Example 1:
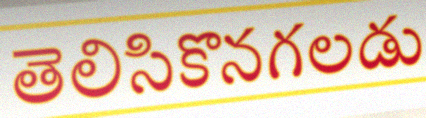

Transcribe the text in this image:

తెలిసికొనగలడు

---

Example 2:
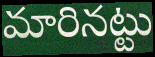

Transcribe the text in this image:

మారినట్టు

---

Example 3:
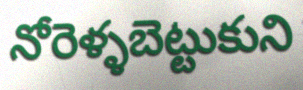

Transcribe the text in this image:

నోరెళ్ళబెట్టుకుని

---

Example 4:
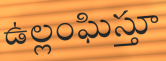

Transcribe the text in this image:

ఉల్లంఘిస్తూ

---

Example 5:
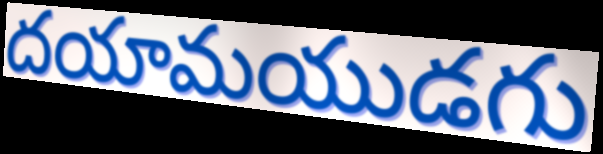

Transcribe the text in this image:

దయామయుడగు